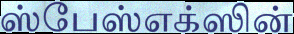
ஸ்பேஸ்எக்ஸின்